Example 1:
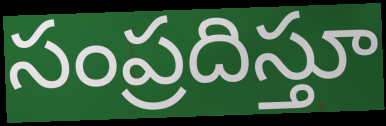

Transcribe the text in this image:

సంప్రదిస్తూ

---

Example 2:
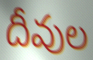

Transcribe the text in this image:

దీవుల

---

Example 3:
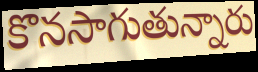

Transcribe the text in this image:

కొనసాగుతున్నారు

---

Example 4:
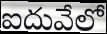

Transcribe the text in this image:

ఐదువేలో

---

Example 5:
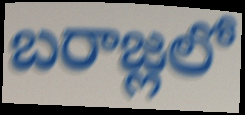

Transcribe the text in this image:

బరాజ్లలో